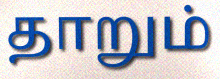
தாறும்